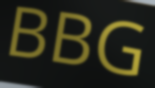
BBG